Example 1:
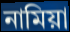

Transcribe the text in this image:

নামিয়া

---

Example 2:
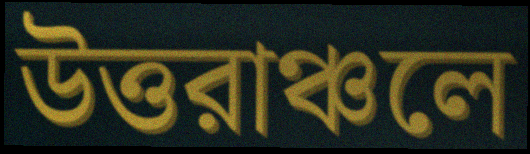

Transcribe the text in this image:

উত্তরাঞ্চলে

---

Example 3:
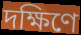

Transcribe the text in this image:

দক্ষিণে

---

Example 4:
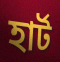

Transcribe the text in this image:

হার্ট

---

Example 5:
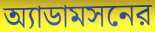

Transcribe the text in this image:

অ্যাডামসনের